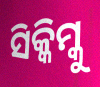
ସିକ୍କିମ୍କୁ